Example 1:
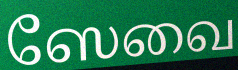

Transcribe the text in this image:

ஸேவை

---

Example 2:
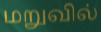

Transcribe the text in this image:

மறுவில்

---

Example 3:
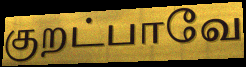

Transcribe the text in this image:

குறட்பாவே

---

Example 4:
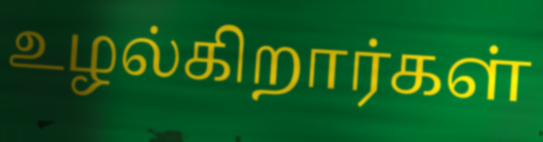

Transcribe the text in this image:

உழல்கிறார்கள்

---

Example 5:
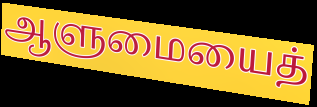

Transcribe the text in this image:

ஆளுமையைத்